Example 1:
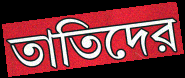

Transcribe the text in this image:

তাতিদের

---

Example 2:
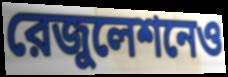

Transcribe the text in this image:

রেজুলেশনেও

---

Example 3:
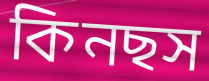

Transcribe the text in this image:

কিনছস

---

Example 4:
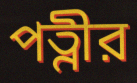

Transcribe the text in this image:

পত্নীর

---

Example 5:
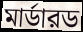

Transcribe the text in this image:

মার্ডারড